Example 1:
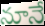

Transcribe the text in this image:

నూనే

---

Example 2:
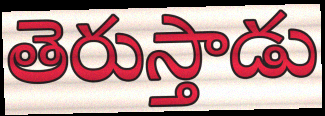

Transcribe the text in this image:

తెరుస్తాడు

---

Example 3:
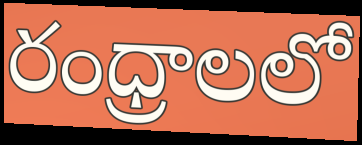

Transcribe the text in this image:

రంధ్రాలలో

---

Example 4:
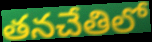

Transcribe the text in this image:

తనచేతిలో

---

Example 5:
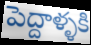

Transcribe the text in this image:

పెద్దాళ్ళకి